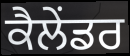
ਕੈਲੇਂਡਰ